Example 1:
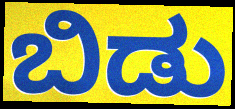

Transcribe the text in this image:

ಬಿಡು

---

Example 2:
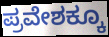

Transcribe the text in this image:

ಪ್ರವೇಶಕ್ಕೂ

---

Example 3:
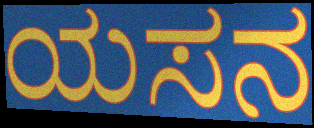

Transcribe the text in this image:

ಯಸನ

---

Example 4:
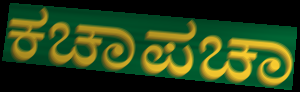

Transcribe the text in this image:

ಕಚಾಪಚಾ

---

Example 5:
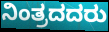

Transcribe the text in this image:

ನಿಂತ್ರದದರು